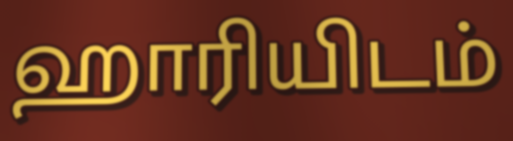
ஹாரியிடம்